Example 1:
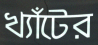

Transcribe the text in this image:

খ্যাঁটের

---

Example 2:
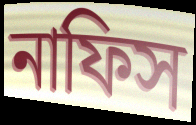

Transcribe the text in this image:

নাফিস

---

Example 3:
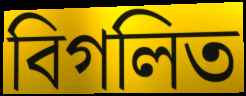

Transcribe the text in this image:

বিগলিত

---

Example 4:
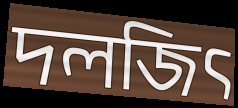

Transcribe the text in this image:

দলজিৎ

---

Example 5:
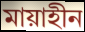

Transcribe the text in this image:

মায়াহীন